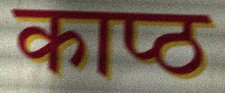
काप्ठ